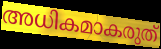
അധികമാകരുത്